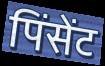
पिंसेंट